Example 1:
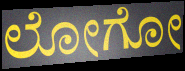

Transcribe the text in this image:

ಲೋಗೋ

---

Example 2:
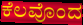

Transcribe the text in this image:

ಕೆಲವೊಂದ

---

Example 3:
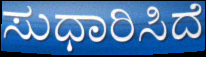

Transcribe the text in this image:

ಸುಧಾರಿಸಿದೆ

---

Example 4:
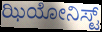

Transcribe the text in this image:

ಝಿಯೋನಿಸ್ಟ್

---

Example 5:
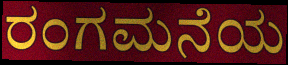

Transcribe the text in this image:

ರಂಗಮನೆಯ